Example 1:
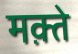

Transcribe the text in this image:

मक़्ते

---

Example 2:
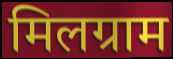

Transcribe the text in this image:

मिलग्राम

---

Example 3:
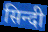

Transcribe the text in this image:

सिन्दी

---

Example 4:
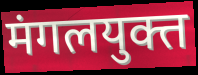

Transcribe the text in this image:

मंगलयुक्त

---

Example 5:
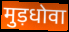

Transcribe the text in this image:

मुड़धोवा